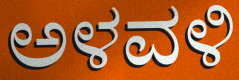
ಅಳವಳಿ